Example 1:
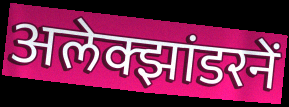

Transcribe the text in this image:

अलेक्झांडरनें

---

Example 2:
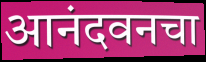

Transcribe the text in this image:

आनंदवनचा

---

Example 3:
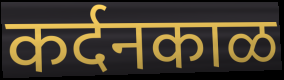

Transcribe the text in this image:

कर्दनकाळ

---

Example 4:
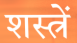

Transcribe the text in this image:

शस्त्रें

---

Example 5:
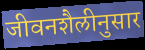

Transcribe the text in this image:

जीवनशैलीनुसार